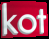
kot